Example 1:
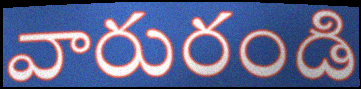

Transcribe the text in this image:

వారురండి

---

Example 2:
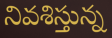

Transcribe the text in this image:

నివశిస్తున్న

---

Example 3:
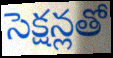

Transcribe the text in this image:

సెక్షన్లతో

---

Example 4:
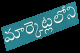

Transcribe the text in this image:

మార్కెట్లలోని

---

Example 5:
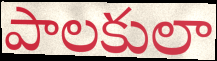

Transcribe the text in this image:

పాలకులా